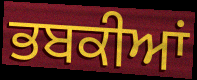
ਭਬਕੀਆਂ